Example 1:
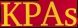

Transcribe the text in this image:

KPAs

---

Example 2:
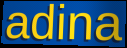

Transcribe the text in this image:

adina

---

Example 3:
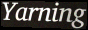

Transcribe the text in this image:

Yarning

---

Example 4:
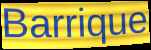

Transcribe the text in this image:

Barrique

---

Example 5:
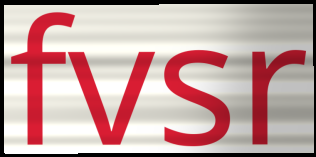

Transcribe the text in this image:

fvsr